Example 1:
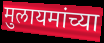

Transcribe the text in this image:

मुलायमांच्या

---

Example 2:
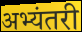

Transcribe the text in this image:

अभ्यंतरी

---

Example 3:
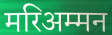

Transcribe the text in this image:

मरिअम्मन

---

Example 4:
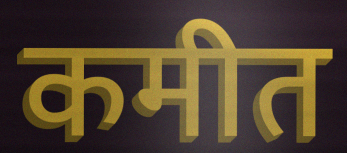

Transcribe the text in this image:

कमीत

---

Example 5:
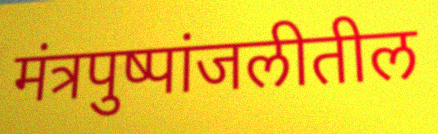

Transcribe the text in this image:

मंत्रपुष्पांजलीतील